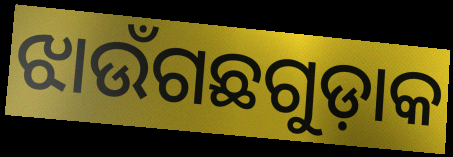
ଝାଉଁଗଛଗୁଡ଼ାକ